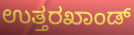
ಉತ್ತರಖಾಂಡ್